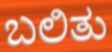
ಬಲಿತು